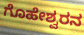
ಗೊಹೇಶ್ವರನ